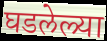
घडलेल्या